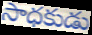
సాధకుడు